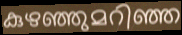
കുഴഞ്ഞുമറിഞ്ഞ